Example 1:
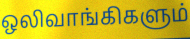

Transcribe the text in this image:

ஒலிவாங்கிகளும்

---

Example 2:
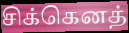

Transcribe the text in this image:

சிக்கெனத்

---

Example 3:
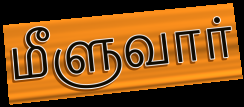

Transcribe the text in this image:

மீளுவார்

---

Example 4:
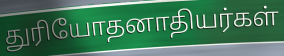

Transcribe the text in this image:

துரியோதனாதியர்கள்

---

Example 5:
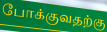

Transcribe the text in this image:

போக்குவதற்கு